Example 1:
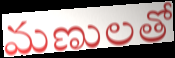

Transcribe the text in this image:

మణులతో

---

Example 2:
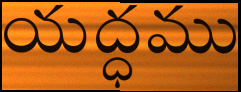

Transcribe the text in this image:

యద్ధము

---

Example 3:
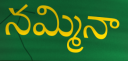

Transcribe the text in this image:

నమ్మినా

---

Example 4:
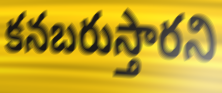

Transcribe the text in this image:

కనబరుస్తారని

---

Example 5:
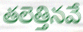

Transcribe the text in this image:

తలెత్తినవే